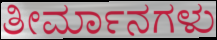
ತೀರ್ಮಾನಗಳು